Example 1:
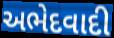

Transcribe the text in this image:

અભેદવાદી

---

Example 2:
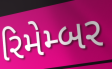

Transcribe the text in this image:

રિમેમ્બર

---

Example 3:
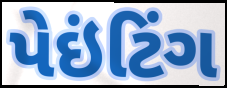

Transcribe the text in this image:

પેઇંટિંગ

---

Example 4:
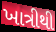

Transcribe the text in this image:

ખાત્રીથી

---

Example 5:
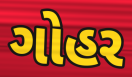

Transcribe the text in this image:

ગોહર